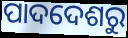
ପାଦଦେଶରୁ